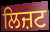
ਲਿਜ਼ਟ